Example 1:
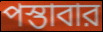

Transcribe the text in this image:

পস্তাবার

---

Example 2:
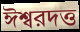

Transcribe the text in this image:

ঈশ্বরদত্ত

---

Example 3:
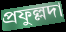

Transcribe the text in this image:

প্রফুল্লদা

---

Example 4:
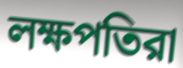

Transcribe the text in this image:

লক্ষপতিরা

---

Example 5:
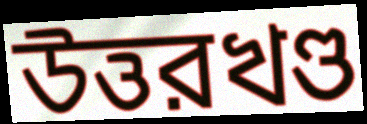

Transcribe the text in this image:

উত্তরখণ্ড